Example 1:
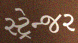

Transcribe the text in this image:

સ્ટ્રેન્જર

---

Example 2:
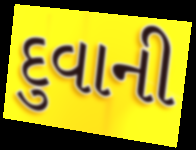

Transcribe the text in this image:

દુવાની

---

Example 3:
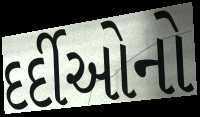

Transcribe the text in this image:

દર્દીઓનો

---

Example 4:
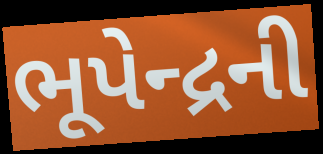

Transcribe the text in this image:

ભૂપેન્દ્રની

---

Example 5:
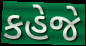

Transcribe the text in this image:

કહેજે